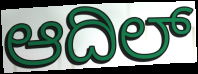
ಆದಿಲ್